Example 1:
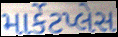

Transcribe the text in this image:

માર્કેટપ્લેસ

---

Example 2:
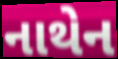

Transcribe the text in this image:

નાથેન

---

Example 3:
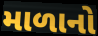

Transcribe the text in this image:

માળાનો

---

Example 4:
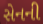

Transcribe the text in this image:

સેનની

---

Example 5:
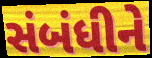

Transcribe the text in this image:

સંબંધીને